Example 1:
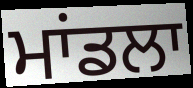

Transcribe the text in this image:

ਮਾਂਡਲਾ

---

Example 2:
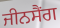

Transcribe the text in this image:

ਜੀਨਸੈਂਗ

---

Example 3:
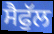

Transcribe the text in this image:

ਸੈਫੁੱਲ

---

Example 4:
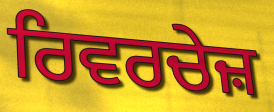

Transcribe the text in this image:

ਰਿਵਰਚੇਜ਼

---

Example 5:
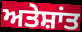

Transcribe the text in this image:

ਅਤੇਸ਼ਾਂਤ